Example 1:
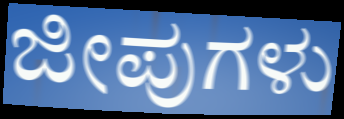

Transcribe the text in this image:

ಜೀಪುಗಳು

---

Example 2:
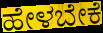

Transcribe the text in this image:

ಹೇಳಬೇಕೆ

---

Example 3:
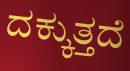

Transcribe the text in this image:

ದಕ್ಕುತ್ತದೆ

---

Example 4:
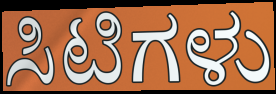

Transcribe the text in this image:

ಸಿಟಿಗಳು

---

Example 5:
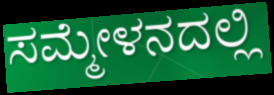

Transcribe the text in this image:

ಸಮ್ಮೇಳನದಲ್ಲಿ